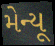
મેન્યૂ